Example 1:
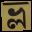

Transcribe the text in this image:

ভ্ল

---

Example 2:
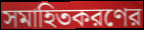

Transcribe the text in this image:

সমাহিতকরণের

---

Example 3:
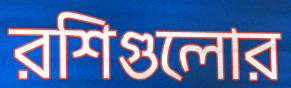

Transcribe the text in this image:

রশিগুলোর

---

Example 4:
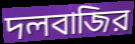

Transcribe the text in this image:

দলবাজির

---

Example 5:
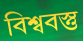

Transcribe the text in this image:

বিশ্ববস্তু